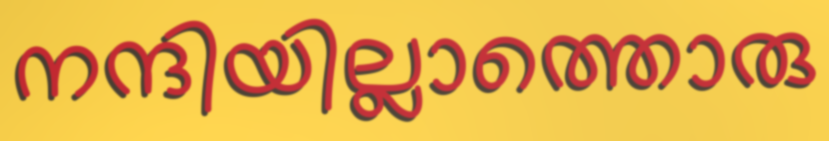
നന്ദിയില്ലാത്തൊരു